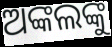
ଅଙ୍କଲଙ୍କୁ